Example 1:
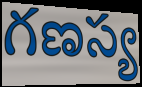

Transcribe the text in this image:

గణస్య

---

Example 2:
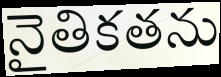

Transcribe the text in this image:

నైతికతను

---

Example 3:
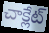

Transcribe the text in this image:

చాక్లేట్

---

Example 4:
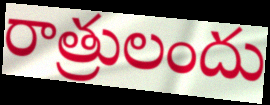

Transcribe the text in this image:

రాత్రులందు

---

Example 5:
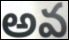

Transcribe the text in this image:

అవ